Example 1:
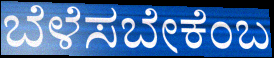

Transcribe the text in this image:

ಬೆಳೆಸಬೇಕೆಂಬ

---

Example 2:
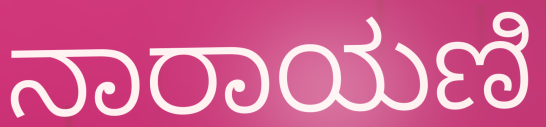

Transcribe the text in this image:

ನಾರಾಯಣಿ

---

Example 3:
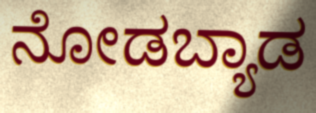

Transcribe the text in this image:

ನೋಡಬ್ಯಾಡ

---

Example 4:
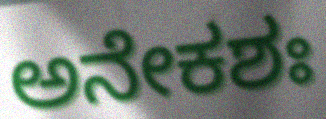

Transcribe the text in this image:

ಅನೇಕಶಃ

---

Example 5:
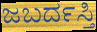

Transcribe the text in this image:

ಜಬರ್ದಸ್ತಿ